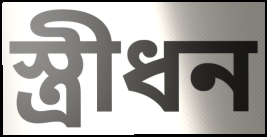
স্ত্রীধন